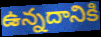
ఉన్నదానికి